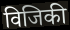
विजिकी